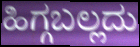
ಹಿಗ್ಗಬಲ್ಲದು